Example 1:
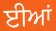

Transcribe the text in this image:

ਈਆਂ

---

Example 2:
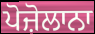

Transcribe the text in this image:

ਪੋਜ਼ੋਲਾਨਾ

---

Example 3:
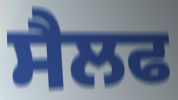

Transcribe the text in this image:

ਸੈਲਫ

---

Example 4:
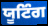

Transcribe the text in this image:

ਯੂਟਿੰਗ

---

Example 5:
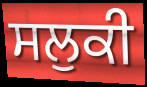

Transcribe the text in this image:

ਸਲੁਕੀ